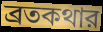
ব্রতকথার